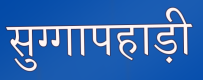
सुग्गापहाड़ी